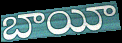
బాయీ